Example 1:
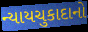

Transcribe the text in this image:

ન્યાયચુકાદાનો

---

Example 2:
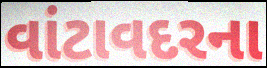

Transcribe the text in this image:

વાંટાવદરના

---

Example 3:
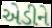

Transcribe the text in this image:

એડીને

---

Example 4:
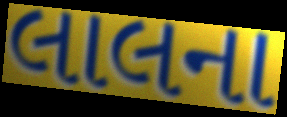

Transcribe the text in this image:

લાલના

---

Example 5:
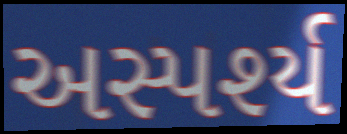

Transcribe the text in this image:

અસ્પર્શ્ય